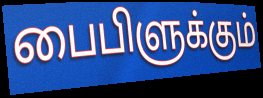
பைபிளுக்கும்